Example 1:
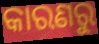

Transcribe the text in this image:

କାରଣରୁ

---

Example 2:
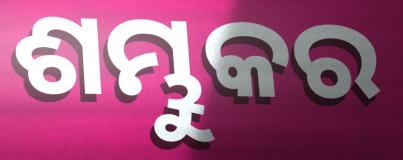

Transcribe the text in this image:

ଶମ୍ଭୁକର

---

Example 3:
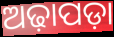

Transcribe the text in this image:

ଅଢ଼ାପଡ଼ା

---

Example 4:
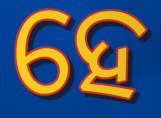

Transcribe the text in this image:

ହେ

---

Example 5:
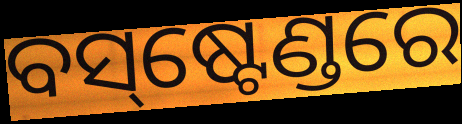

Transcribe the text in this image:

ବସ୍‌ଷ୍ଟେଣ୍ଡରେ